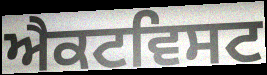
ਐਕਟਵਿਸਟ